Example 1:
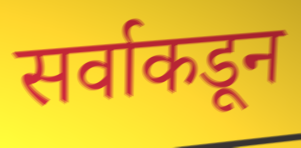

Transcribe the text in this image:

सर्वाकडून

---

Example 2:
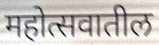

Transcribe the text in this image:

महोत्सवातील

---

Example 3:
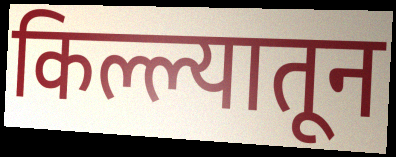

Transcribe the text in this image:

किल्ल्यातून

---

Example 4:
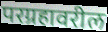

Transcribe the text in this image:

परग्रहावरील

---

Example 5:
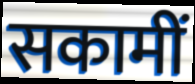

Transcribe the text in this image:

सकामीं